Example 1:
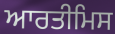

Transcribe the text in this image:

ਆਰਤੀਮਿਸ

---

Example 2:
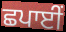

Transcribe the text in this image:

ਛਪਾਈਂ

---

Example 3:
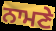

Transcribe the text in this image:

ਨਾਮਣੇ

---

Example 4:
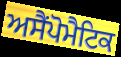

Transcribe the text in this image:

ਅਸੈਂਪੋਮੈਟਿਕ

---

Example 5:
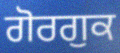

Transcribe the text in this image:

ਗੋਰਗੁਕ